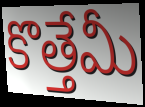
కొత్తేమీ